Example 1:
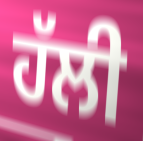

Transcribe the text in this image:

ਹੱਲੀ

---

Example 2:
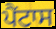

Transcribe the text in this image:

ਪੈਂਟਾਸ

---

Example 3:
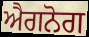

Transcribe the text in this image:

ਐਗਨੋਗ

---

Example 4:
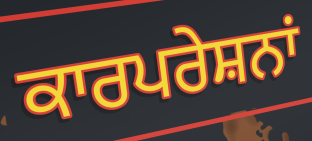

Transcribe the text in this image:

ਕਾਰਪਰੇਸ਼ਨਾਂ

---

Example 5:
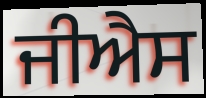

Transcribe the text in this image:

ਜੀਐਸ